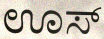
ಊಸ್